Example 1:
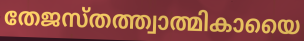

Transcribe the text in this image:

തേജസ്തത്ത്വാത്മികായൈ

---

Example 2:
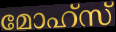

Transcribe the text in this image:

മോഹ്സ്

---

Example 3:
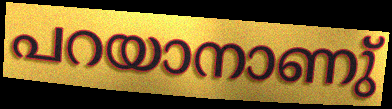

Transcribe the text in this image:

പറയാനാണു്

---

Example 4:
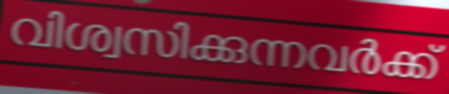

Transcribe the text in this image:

വിശ്വസിക്കുന്നവർക്ക്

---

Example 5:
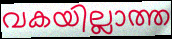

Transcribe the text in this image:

വകയില്ലാത്ത